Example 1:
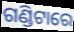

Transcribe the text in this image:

ଗଣ୍ଡିଟାରେ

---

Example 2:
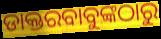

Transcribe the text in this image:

ଡାକ୍ତରବାବୁଙ୍କଠାରୁ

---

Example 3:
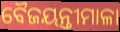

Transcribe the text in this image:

ବୈଜୟନ୍ତୀମାଳା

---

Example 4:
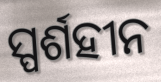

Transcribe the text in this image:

ସ୍ପର୍ଶହୀନ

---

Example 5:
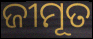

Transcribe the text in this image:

ଜୀମୂତ